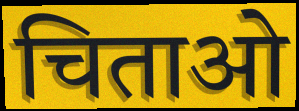
चिताओ